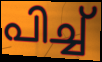
പിച്ച്